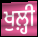
ਖੁਲ਼੍ਹੀ